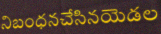
నిబంధనచేసినయెడల